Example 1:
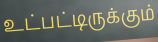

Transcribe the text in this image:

உட்பட்டிருக்கும்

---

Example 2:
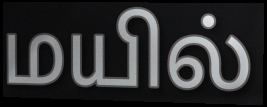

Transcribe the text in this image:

மயில்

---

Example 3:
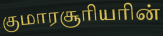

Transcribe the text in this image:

குமாரசூரியரின்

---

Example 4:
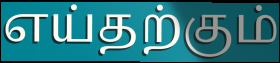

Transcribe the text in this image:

எய்தற்கும்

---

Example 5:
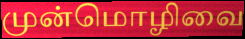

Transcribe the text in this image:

முன்மொழிவை